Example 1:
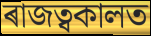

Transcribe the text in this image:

ৰাজত্বকালত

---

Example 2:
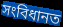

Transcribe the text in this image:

সংবিধানত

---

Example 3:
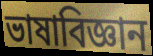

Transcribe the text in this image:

ভাষাবিজ্ঞান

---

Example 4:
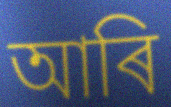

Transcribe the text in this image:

আৰি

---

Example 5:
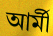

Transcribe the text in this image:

আৰ্মী